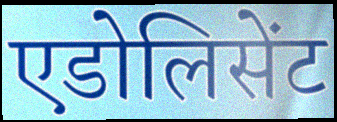
एडोलिसेंट